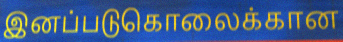
இனப்படுகொலைக்கான